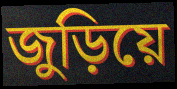
জুড়িয়ে